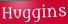
Huggins